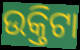
ଉକ୍ତିଟା